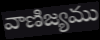
వాణిజ్యము